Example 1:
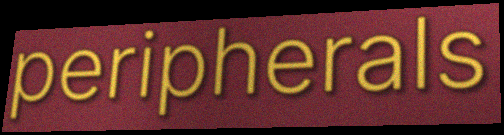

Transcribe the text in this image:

peripherals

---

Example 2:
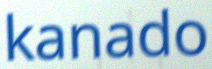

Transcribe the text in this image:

kanado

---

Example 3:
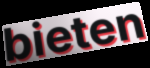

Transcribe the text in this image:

bieten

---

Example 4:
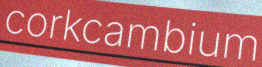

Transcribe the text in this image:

corkcambium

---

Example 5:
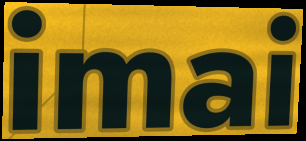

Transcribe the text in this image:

imai